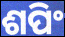
ଶପିଂ